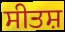
ਸੀਤਸ਼